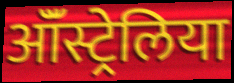
ऑॅस्ट्रेलिया